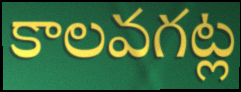
కాలవగట్ల